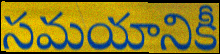
సమయానికీ